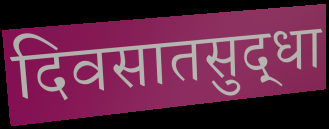
दिवसातसुद्धा